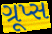
ગ્રૂપ્સ